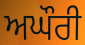
ਅਘੌਰੀ